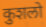
कुशलो